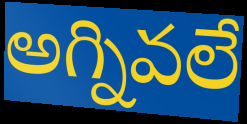
అగ్నివలే